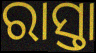
ରାସ୍ତା